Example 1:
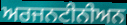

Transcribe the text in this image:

ਅਰਜਨਟੀਨੀਅਨ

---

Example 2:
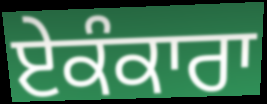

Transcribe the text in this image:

ਏਕੰਕਾਰਾ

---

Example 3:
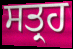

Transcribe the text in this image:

ਸਤ੍ਰਹ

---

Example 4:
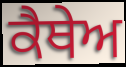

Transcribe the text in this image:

ਕੈਥੇਅ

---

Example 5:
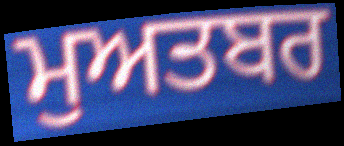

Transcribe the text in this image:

ਮੁਅਤਬਰ